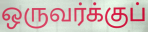
ஒருவர்க்குப்